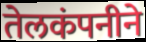
तेलकंपनीने